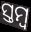
ସ୍ତମ୍ବ